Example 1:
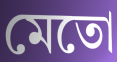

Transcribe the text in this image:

মেতো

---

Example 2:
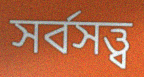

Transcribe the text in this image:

সর্বসত্ত্ব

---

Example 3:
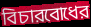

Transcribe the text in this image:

বিচারবোধের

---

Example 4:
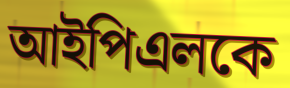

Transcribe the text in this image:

আইপিএলকে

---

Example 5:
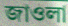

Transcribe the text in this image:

জাওলা